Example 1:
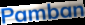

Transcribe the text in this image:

Pamban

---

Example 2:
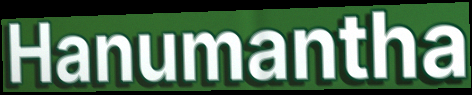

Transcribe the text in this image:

Hanumantha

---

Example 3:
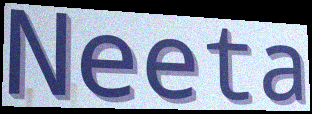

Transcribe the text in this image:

Neeta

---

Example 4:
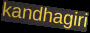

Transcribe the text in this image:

kandhagiri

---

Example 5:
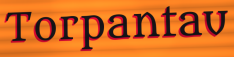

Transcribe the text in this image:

Torpantau